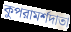
কুপরামর্শদাতা